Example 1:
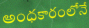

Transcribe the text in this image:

అంధకారంలోనే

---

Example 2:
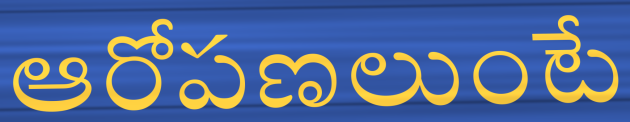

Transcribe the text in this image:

ఆరోపణలుంటే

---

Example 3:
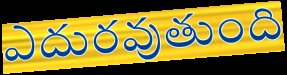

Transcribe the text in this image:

ఎదురవుతుంది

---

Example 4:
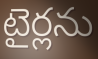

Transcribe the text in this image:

టైర్లను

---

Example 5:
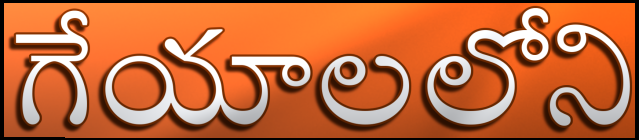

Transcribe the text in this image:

గేయాలలోని